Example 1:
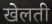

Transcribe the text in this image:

खेलती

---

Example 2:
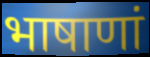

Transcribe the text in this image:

भाषाणां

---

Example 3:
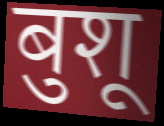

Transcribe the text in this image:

बुशू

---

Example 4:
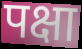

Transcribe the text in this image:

पक्षा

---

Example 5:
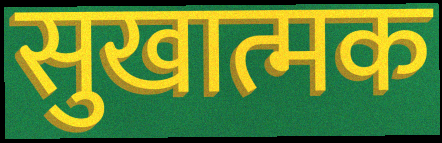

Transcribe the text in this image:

सुखात्मक